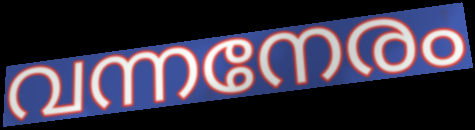
വന്നനേരം